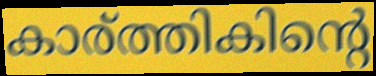
കാര്ത്തികിന്റെ